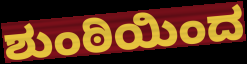
ಶುಂಠಿಯಿಂದ